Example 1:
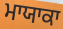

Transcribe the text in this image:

ਮਾਯਾਕਾ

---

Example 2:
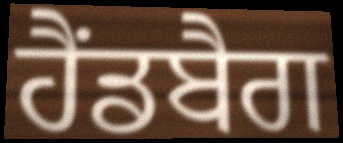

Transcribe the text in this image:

ਹੈਂਡਬੈਗ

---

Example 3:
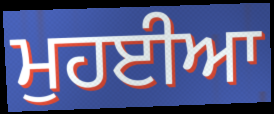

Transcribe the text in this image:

ਮੁਹਈਆ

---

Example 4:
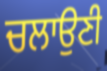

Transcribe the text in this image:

ਚਲਾਉਣੀ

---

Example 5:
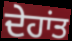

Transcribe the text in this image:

ਦੇਹਾਂਤ